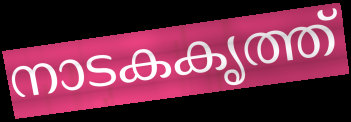
നാടകകൃത്ത്